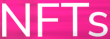
NFTs